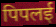
पिपलई